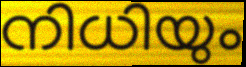
നിധിയും